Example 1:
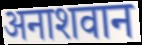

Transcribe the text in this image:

अनाशवान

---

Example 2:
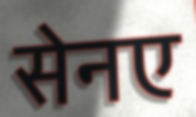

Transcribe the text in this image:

सेनए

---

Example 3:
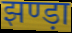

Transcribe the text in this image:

झण्ड़ा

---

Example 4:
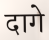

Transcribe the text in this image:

दागे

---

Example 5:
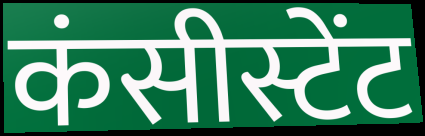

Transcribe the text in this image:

कंसीस्टेंट